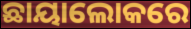
ଛାୟାଲୋକରେ